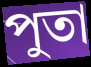
পুতা